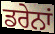
ਡਰੇਨਾਂ